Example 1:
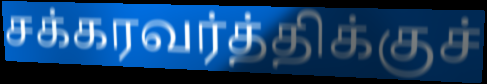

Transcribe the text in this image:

சக்கரவர்த்திக்குச்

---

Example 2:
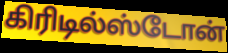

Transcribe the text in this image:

கிரிடில்ஸ்டோன்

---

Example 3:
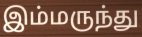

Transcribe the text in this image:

இம்மருந்து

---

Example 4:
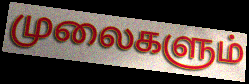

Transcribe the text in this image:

முலைகளும்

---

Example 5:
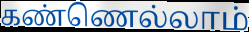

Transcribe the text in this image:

கண்ணெல்லாம்